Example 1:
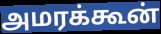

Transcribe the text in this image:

அமரக்கூன்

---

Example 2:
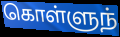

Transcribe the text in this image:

கொள்ளுந்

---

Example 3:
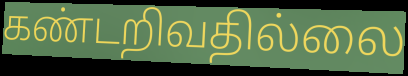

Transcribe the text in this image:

கண்டறிவதில்லை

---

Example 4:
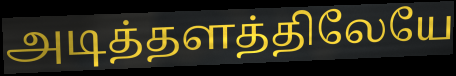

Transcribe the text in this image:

அடித்தளத்திலேயே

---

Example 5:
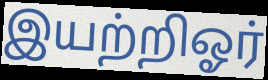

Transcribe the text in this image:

இயற்றிஓர்